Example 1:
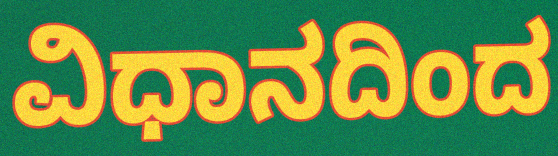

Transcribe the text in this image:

ವಿಧಾನದಿಂದ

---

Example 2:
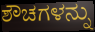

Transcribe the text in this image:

ಶೌಚಗಳನ್ನು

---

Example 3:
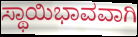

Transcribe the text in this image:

ಸ್ಥಾಯಿಭಾವವಾಗಿ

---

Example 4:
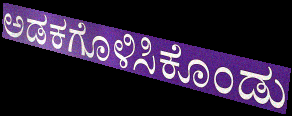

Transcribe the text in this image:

ಅಡಕಗೊಳಿಸಿಕೊಂಡು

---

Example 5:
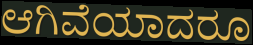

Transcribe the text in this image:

ಆಗಿವೆಯಾದರೂ